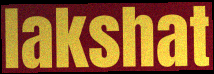
lakshat